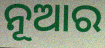
ନୂଆର